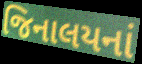
જિનાલયનાં